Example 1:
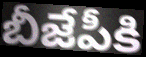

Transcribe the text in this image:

బీజేపీకి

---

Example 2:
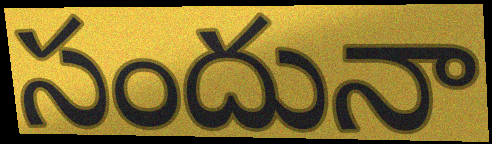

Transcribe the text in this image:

సందునా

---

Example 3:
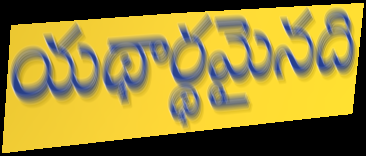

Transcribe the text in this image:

యథార్థమైనది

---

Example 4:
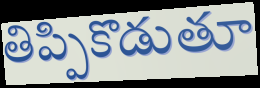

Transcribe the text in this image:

తిప్పికొడుతూ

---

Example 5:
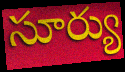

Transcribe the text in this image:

సూర్యు